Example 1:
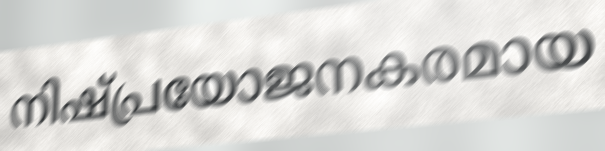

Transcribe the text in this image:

നിഷ്പ്രയോജനകരമായ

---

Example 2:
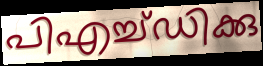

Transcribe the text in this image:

പിഎച്ച്ഡിക്കു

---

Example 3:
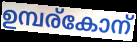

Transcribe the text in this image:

ഉമ്പര്കോന്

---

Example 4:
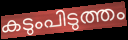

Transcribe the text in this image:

കടുംപിടുത്തം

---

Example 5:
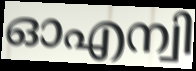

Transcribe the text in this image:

ഓഎന്വി